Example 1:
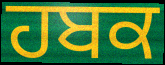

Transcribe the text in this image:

ਹਬਕ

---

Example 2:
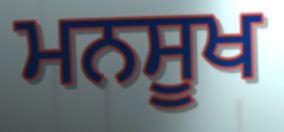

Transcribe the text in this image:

ਮਨਸੂਖ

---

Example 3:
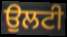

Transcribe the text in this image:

ਉਲਟੀ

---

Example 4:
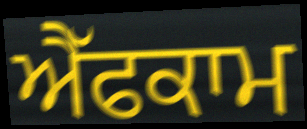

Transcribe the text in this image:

ਐੱਫਕਾਮ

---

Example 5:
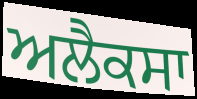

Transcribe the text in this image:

ਅਲੈਕਸਾ